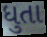
ધુતા